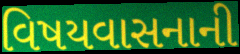
વિષયવાસનાની